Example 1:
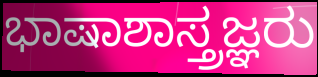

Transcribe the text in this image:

ಭಾಷಾಶಾಸ್ತ್ರಜ್ಞರು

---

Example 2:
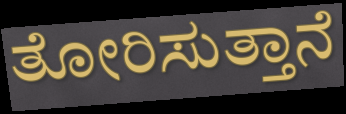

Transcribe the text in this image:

ತೋರಿಸುತ್ತಾನೆ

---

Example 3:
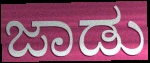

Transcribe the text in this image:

ಜಾಡು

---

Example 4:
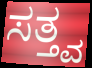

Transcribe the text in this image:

ಸತ್ತ್ವ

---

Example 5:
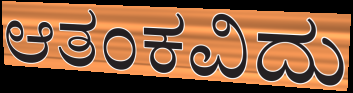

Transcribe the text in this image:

ಆತಂಕವಿದು